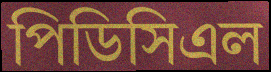
পিডিসিএল